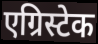
एग्रिस्टेक